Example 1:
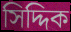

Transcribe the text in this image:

সিদ্দিক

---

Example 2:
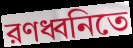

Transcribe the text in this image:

রণধ্বনিতে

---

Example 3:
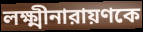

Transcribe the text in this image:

লক্ষ্মীনারায়ণকে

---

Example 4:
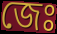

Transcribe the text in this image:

জেঃ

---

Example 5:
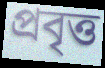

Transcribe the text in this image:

প্রবৃত্ত